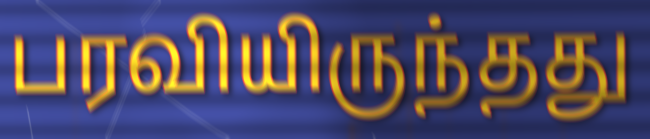
பரவியிருந்தது